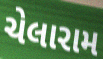
ચેલારામ